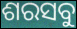
ଶରସବୁ